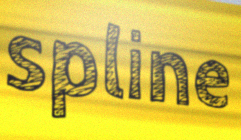
spline